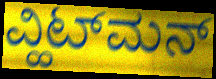
ವ್ಹಿಟ್‌ಮನ್